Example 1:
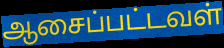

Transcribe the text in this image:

ஆசைப்பட்டவள்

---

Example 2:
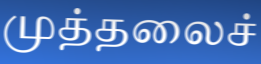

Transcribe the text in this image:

முத்தலைச்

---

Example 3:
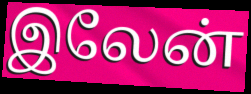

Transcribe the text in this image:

இலேன்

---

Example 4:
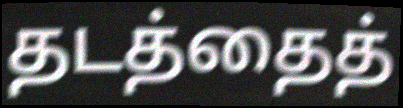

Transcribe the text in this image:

தடத்தைத்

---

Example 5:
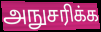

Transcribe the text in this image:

அநுசரிக்க